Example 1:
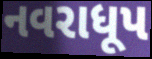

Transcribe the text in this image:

નવરાધૂપ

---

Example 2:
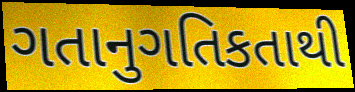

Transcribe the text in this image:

ગતાનુગતિકતાથી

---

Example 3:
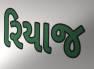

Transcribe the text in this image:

રિયાજ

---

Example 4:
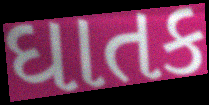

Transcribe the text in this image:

ઘાતક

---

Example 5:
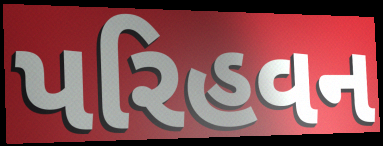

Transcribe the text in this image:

પરિહવન